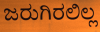
ಜರುಗಿರಲಿಲ್ಲ